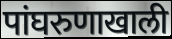
पांघरुणाखाली